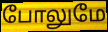
போலுமே